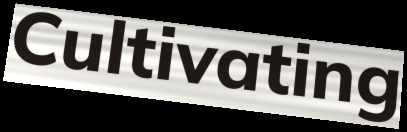
Cultivating